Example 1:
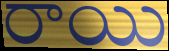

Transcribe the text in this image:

రాయి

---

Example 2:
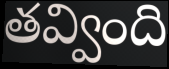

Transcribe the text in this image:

తవ్వింది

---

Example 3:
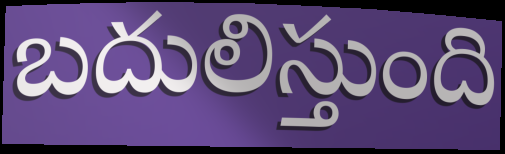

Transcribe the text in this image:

బదులిస్తుంది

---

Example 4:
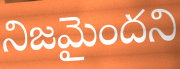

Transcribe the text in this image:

నిజమైందని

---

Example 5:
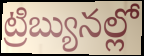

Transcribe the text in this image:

ట్రిబ్యునల్లో